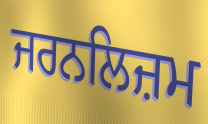
ਜਰਨਲਿਜ਼ਮ